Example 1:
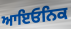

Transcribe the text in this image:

ਆਇਓਨਿਕ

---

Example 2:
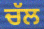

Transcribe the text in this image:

ਚੱਲ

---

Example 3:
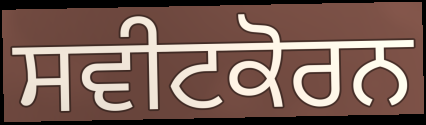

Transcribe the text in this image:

ਸਵੀਟਕੋਰਨ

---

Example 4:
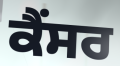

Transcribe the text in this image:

ਕੈਂਸਰ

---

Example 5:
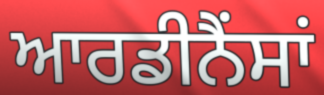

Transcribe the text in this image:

ਆਰਡੀਨੈਂਸਾਂ